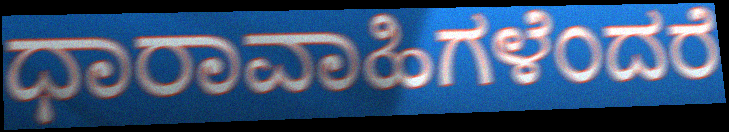
ಧಾರಾವಾಹಿಗಳೆಂದರೆ